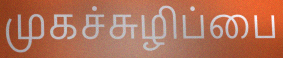
முகச்சுழிப்பை